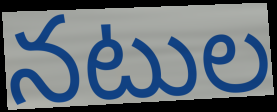
నటుల